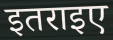
इतराइए